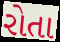
રોતા